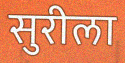
सुरीला